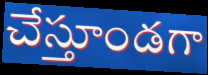
చేస్తూండగా